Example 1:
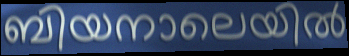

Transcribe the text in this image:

ബിയനാലെയിൽ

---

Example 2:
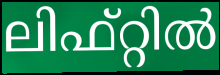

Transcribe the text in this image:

ലിഫ്റ്റിൽ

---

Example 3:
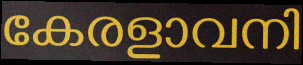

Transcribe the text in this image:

കേരളാവനി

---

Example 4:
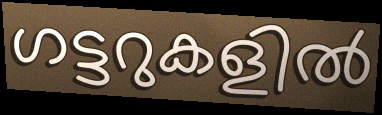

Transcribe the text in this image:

ഗട്ടറുകളിൽ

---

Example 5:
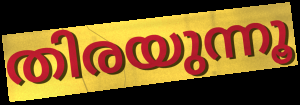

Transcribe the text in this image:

തിരയുന്നൂ